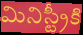
మినిస్ట్రీకి